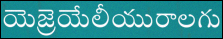
యెజ్రెయేలీయురాలగు